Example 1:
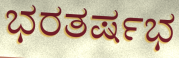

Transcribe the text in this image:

ಭರತರ್ಷಭ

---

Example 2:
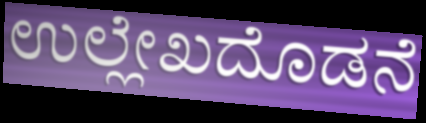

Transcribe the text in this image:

ಉಲ್ಲೇಖದೊಡನೆ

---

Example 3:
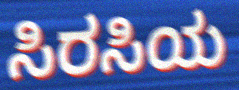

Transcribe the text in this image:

ಸಿರಸಿಯ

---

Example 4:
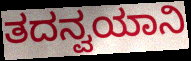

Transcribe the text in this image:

ತದನ್ವಯಾನಿ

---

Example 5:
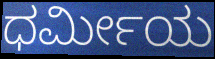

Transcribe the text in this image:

ಧರ್ಮೀಯ